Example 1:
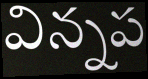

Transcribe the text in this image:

విన్నప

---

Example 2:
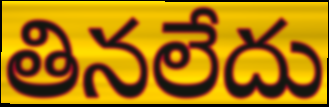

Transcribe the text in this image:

తినలేదు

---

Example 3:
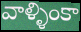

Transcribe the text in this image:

వాళ్ళింకా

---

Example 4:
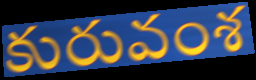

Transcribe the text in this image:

కురువంశ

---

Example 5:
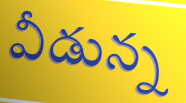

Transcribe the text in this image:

వీడున్న